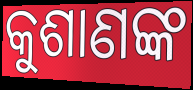
କୁଶାଣଙ୍କ